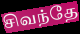
சிவந்தே